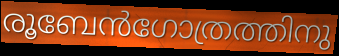
രൂബേൻഗോത്രത്തിനു